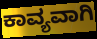
ಕಾವ್ಯವಾಗಿ